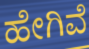
ಹೇಗಿವೆ